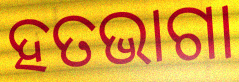
ହତଭାଗା